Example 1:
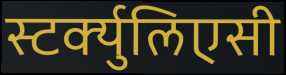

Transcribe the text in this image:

स्टर्क्युलिएसी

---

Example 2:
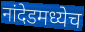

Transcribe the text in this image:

नांदेडमध्येच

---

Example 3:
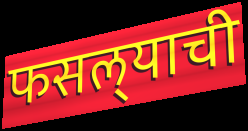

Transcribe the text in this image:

फसल्याची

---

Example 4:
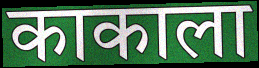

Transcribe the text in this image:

काकाला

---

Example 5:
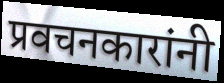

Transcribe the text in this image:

प्रवचनकारांनी